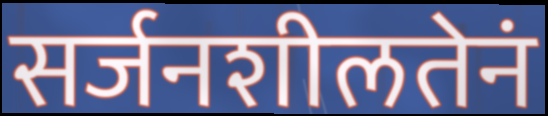
सर्जनशीलतेनं